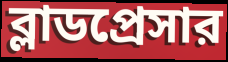
ব্লাডপ্রেসার